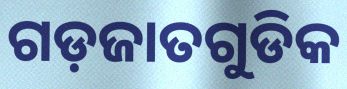
ଗଡ଼ଜାତଗୁଡିକ